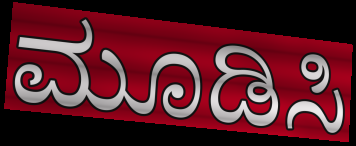
ಮೂಡಿಸಿ